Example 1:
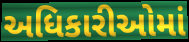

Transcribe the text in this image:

અધિકારીઓમાં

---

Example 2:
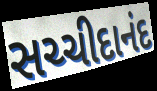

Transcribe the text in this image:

સચ્ચીદાનંદ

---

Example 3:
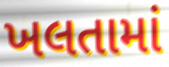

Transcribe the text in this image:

ખલતામાં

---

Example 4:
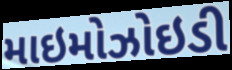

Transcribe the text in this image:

માઇમોઝોઇડી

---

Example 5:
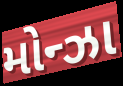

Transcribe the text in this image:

મોન્ઝા